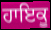
ਹਾਇਕੂ